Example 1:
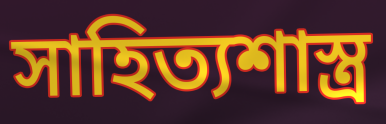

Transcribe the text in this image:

সাহিত্যশাস্ত্র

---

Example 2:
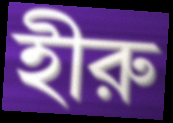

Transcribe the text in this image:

হীরু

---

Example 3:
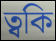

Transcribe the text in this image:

ত্বকি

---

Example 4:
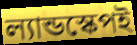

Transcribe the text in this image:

ল্যান্ডস্কেপই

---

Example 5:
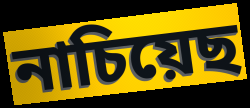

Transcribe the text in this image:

নাচিয়েছ